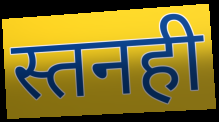
स्तनही